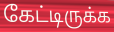
கேட்டிருக்க